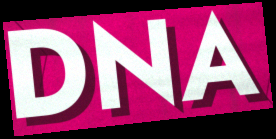
DNA